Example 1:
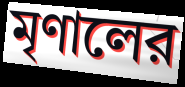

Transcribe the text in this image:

মৃণালের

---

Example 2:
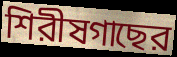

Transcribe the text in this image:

শিরীষগাছের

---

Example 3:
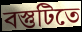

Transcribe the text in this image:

বস্তুটিতে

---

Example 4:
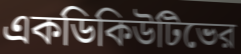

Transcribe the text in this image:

একডিকিউটিভের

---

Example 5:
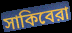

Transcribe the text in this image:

সাকিবেরা